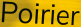
Poirier